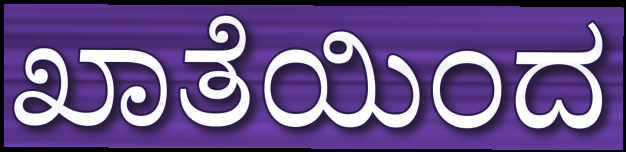
ಖಾತೆಯಿಂದ